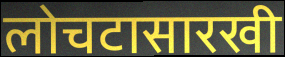
लोचटासारखी